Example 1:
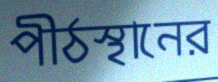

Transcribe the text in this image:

পীঠস্থানের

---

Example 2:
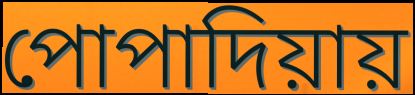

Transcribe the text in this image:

পোপাদিয়ায়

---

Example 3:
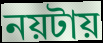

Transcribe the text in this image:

নয়টায়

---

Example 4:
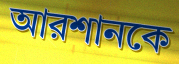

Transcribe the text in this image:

আরশানকে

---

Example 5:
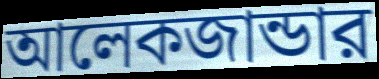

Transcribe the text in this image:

আলেকজান্ডার